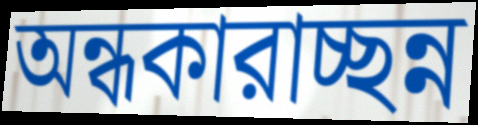
অন্ধকারাচ্ছন্ন